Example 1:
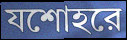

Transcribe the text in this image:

যশোহরে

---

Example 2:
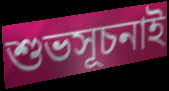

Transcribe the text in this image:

শুভসূচনাই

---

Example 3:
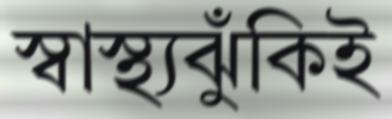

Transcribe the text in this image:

স্বাস্থ্যঝুঁকিই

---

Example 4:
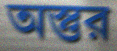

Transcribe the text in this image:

অস্তুর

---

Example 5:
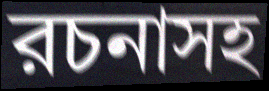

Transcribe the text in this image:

রচনাসহ